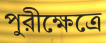
পুরীক্ষেত্রে